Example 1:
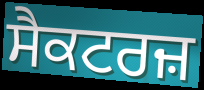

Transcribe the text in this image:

ਸੈਕਟਰਜ਼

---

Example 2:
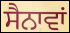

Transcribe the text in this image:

ਸੈਨਾਵਾਂ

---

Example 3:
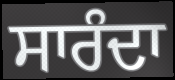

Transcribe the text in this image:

ਸਾਰੰਦਾ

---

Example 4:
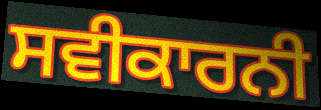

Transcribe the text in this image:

ਸਵੀਕਾਰਨੀ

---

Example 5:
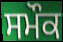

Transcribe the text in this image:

ਸਮੌਕ